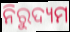
ନିରୁଦ୍ୟମ